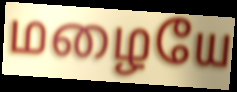
மழையே